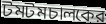
টমটমচালকের